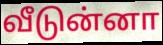
வீடுன்னா